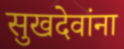
सुखदेवांना